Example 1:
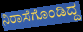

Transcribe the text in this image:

ನಿರಾಸೆಗೊಂಡಿದ್ದ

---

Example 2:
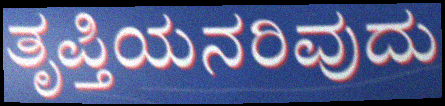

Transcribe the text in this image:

ತೃಪ್ತಿಯನರಿವುದು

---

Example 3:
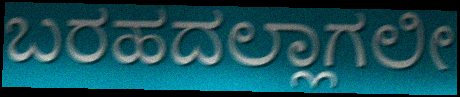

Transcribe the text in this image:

ಬರಹದಲ್ಲಾಗಲೀ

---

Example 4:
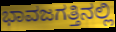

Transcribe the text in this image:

ಭಾವಜಗತ್ತಿನಲ್ಲಿ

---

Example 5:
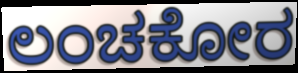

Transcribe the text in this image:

ಲಂಚಕೋರ